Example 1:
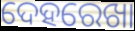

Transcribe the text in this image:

ଦେହରେଖା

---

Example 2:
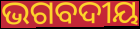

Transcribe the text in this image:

ଭଗବଦୀୟ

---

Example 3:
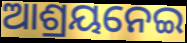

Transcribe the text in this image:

ଆଶ୍ରୟନେଇ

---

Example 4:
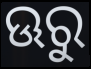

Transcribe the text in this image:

ଊରୁ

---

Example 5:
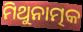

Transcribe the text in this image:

ମିଥୁନାତ୍ମକ